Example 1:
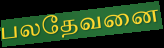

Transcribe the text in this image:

பலதேவனை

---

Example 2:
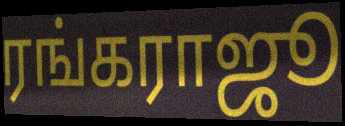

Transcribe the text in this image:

ரங்கராஜூ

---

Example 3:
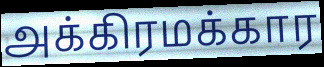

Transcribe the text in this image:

அக்கிரமக்கார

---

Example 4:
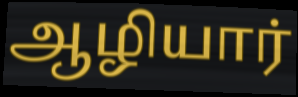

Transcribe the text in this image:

ஆழியார்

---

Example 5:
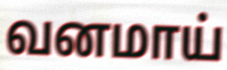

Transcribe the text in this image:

வனமாய்